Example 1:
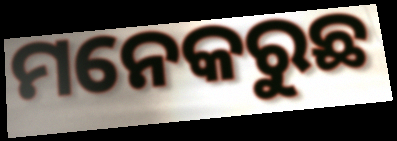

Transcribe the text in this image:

ମନେକରୁଛ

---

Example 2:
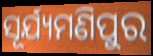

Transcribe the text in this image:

ସୂର୍ଯ୍ୟମଣିପୁର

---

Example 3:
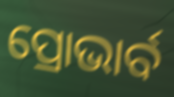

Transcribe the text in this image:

ପ୍ରୋଭାର୍ବ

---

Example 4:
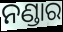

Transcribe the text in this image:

ନଣ୍ଡାର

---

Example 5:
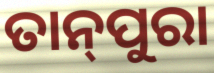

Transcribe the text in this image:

ତାନ୍‌ପୁରା